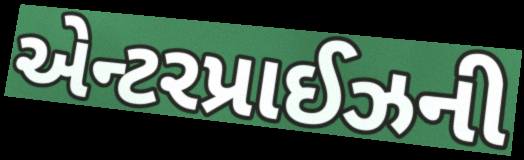
એન્ટરપ્રાઈઝની